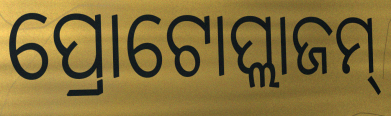
ପ୍ରୋଟୋପ୍ଲାଜମ୍